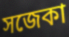
সজেকা